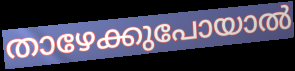
താഴേക്കുപോയാൽ